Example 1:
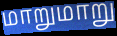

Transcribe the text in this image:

மாறுமாறு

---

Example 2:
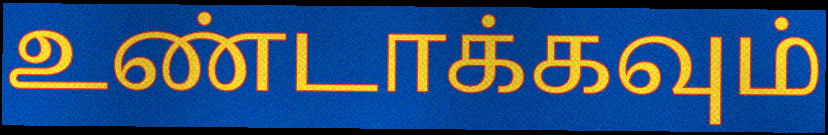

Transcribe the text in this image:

உண்டாக்கவும்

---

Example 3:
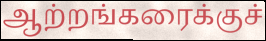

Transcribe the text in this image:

ஆற்றங்கரைக்குச்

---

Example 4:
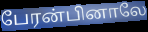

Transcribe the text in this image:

பேரன்பினாலே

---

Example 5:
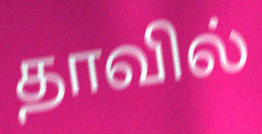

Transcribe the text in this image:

தாவில்